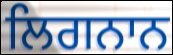
ਲਿਗਨਾਨ